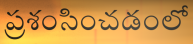
ప్రశంసించడంలో